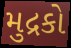
મુદ્રકો